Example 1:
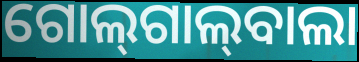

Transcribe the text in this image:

ଗୋଲ୍‍ଗାଲ୍‍ବାଲା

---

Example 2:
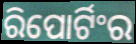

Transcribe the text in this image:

ରିପୋର୍ଟିଂର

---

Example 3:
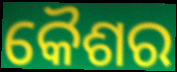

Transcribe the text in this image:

କୈଶର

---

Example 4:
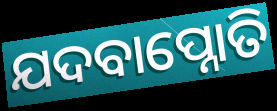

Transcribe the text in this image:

ଯଦବାପ୍ନୋତି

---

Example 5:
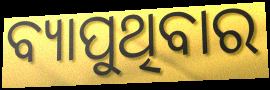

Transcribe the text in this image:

ବ୍ୟାପୁଥିବାର